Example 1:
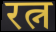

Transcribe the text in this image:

रत्न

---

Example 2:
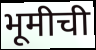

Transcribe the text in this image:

भूमीची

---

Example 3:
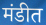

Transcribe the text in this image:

मंडीत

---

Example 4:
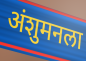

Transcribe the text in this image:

अंशुमनला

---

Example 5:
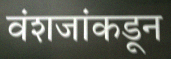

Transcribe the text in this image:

वंशजांकडून